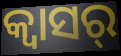
କ୍ୱାସର୍